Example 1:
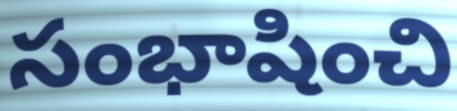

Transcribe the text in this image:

సంభాషించి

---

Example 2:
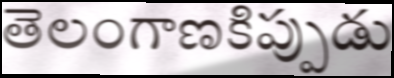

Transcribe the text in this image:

తెలంగాణకిప్పుడు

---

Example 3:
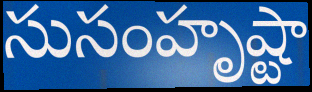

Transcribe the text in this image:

సుసంహృష్టా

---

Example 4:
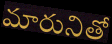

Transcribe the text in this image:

మారునితో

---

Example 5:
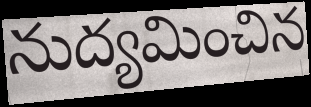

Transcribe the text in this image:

నుద్యమించిన